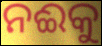
ନଈକୁ